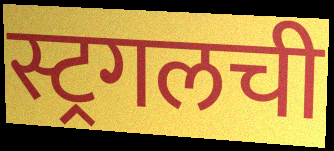
स्ट्रगलची